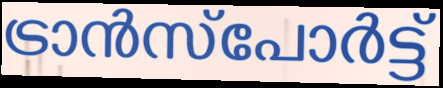
ട്രാൻസ്‌പോർട്ട്